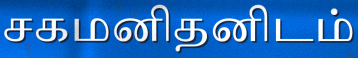
சகமனிதனிடம்